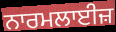
ਨਾਰਮਲਾਈਜ਼